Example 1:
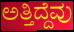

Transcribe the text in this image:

ಅತ್ತಿದ್ದೆವು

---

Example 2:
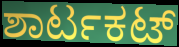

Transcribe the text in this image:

ಶಾರ್ಟಕಟ್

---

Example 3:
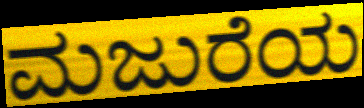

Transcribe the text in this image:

ಮಜುರೆಯ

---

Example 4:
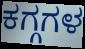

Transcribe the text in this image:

ಕಗ್ಗಗಳ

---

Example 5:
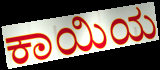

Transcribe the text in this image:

ಕಾಯಿಯ